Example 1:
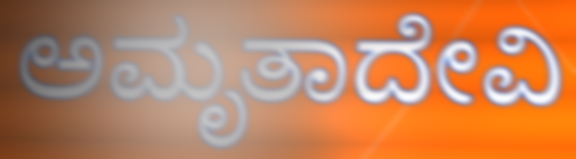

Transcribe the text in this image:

ಅಮೃತಾದೇವಿ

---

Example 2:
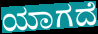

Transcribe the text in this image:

ಯಾಗದೆ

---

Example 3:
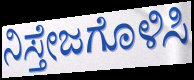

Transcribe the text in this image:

ನಿಸ್ತೇಜಗೊಳಿಸಿ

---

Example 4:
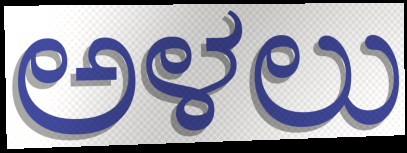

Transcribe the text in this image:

ಅಳಲು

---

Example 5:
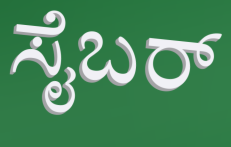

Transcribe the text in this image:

ಸೈಬರ್